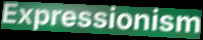
Expressionism